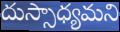
దుస్సాధ్యమని